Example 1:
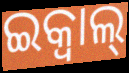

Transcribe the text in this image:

ଇକ୍ୱାଲ୍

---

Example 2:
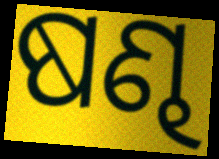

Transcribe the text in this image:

ଷଣ୍ଢ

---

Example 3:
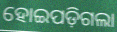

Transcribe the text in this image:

ହୋଇପଡ଼ିଗଲା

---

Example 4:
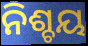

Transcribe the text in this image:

ନିଶ୍ଚୟ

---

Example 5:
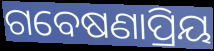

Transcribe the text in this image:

ଗବେଷଣାପ୍ରିୟ